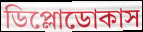
ডিপ্লোডোকাস